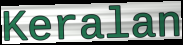
Keralan